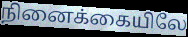
நினைக்கையிலே